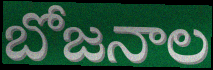
బోజనాల